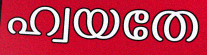
ഹ്വയതേ